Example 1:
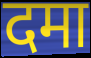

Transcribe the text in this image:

दमा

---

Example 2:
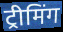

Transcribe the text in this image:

ट्रीमिंग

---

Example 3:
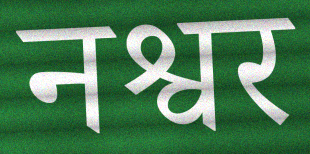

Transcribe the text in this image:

नश्वर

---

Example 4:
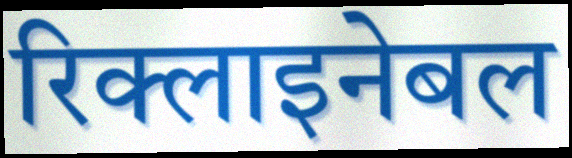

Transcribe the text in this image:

रिक्लाइनेबल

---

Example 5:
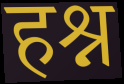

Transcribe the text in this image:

हश्न